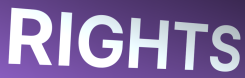
RIGHTS